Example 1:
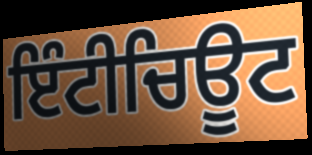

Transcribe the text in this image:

ਇੰਟੀਚਿਊਟ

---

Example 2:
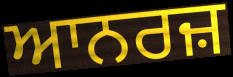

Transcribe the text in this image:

ਆਨਰਜ਼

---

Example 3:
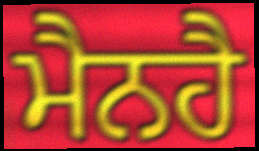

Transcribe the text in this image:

ਮੈਨਹੈ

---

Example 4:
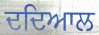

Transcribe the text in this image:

ਦਦਿਆਲ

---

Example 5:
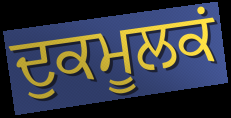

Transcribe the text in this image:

ਦੁਕਮੂਲਕਂ